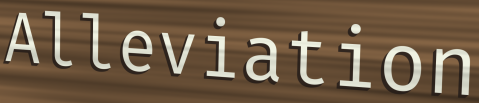
Alleviation